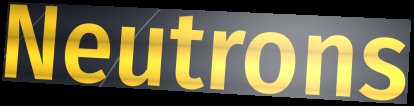
Neutrons